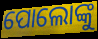
ପୋଲୋଙ୍କୁ